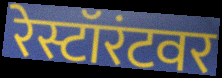
रेस्टॉरंटवर